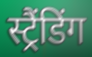
स्ट्रैंडिंग